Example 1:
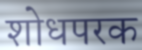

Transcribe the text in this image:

शोधपरक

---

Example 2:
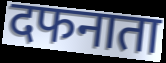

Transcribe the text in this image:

दफनाता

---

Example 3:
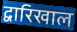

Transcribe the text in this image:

द्वारिखाल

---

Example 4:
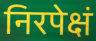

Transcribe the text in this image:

निरपेक्षं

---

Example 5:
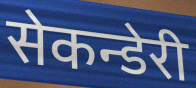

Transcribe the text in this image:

सेकन्डेरी